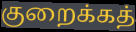
குறைக்கத்